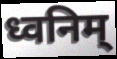
ध्वनिम्